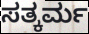
ಸತ್ಕರ್ಮ